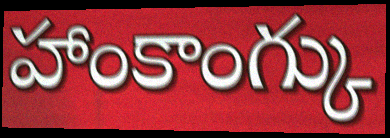
హాంకాంగ్కు